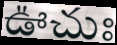
ఊచుః